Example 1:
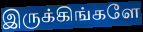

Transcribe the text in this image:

இருக்கிங்களே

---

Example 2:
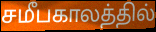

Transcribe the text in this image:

சமீபகாலத்தில்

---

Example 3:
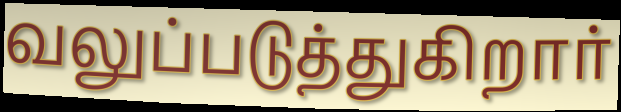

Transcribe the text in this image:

வலுப்படுத்துகிறார்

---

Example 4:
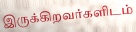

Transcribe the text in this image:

இருக்கிறவர்களிடம்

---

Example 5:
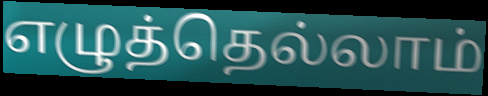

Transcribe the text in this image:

எழுத்தெல்லாம்